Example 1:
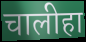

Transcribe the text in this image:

चालीहा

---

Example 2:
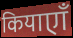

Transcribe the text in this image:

कियाएाँ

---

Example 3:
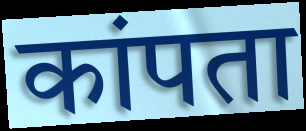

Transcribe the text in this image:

कांपता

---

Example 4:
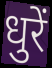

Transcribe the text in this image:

धुरें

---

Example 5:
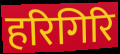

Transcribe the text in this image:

हरिगिरि